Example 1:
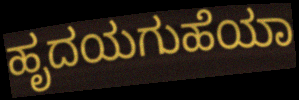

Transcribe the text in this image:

ಹೃದಯಗುಹೆಯಾ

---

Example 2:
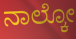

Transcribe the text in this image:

ನಾಲ್ಕೋ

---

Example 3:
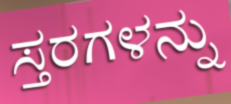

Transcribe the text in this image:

ಸ್ತರಗಳನ್ನು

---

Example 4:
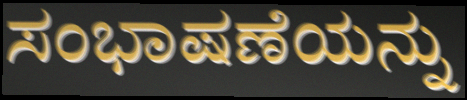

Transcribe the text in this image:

ಸಂಭಾಷಣೆಯನ್ನು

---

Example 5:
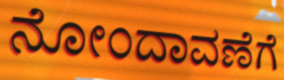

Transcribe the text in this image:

ನೋಂದಾವಣೆಗೆ